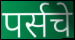
पर्सचे